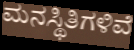
ಮನಸ್ಥಿತಿಗಳಿವೆ